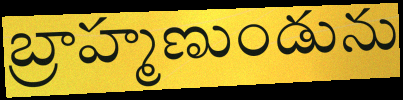
బ్రాహ్మణుండును